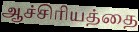
ஆச்சிரியத்தை